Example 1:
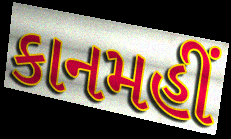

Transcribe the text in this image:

કાનમહીં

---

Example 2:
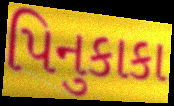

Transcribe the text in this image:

પિનુકાકા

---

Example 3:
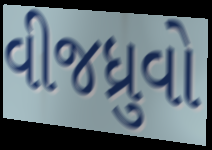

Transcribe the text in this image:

વીજધ્રુવો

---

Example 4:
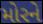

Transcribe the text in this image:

મોરને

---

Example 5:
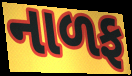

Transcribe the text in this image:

નાળફ